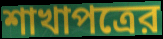
শাখাপত্রের